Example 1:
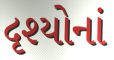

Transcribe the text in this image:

દૃશ્યોનાં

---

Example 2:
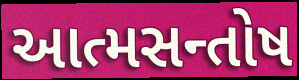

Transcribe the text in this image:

આત્મસન્તોષ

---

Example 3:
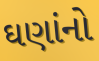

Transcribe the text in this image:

ઘણાંનો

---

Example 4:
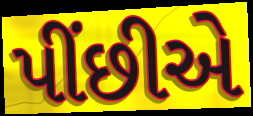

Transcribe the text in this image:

પીંછીએ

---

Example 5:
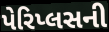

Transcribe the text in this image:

પેરિપ્લસની